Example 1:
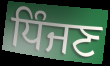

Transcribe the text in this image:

ਧਿੰਜਣ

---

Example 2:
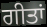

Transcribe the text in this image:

ਗੀਤਾਂ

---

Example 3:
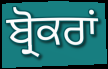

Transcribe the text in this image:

ਬ੍ਰੋਕਰਾਂ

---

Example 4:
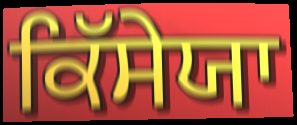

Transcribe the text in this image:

ਕਿੱਸੇਯਾ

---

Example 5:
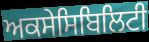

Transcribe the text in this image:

ਅਕਸੇਸਿਬਿਲਿਟੀ